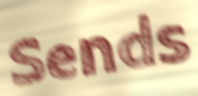
Sends